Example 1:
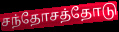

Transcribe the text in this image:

சந்தோசத்தோடு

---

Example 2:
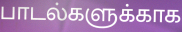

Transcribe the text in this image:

பாடல்களுக்காக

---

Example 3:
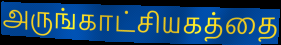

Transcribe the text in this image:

அருங்காட்சியகத்தை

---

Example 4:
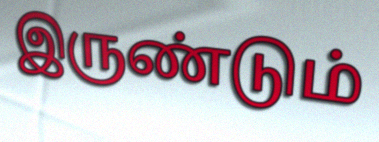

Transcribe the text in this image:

இருண்டும்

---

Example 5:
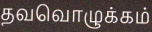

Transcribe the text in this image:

தவவொழுக்கம்